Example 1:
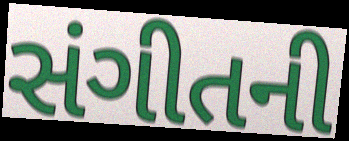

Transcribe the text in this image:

સંગીતની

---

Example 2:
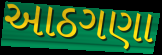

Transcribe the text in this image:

આઠગણા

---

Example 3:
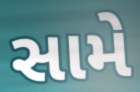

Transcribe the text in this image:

સામે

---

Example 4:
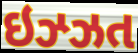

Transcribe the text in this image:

ઇઝ્ઝત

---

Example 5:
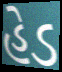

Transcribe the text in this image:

હેડ